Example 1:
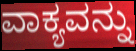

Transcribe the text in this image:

ವಾಕ್ಯವನ್ನು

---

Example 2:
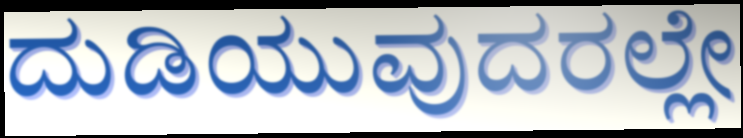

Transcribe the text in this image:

ದುಡಿಯುವುದರಲ್ಲೇ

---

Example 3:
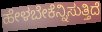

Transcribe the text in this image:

ಹೇಳಬೇಕೆನ್ನಿಸುತ್ತಿದೆ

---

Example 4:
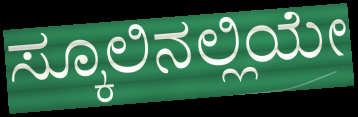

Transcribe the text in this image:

ಸ್ಕೂಲಿನಲ್ಲಿಯೇ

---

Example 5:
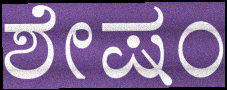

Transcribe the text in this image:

ಶೇಷಂ